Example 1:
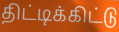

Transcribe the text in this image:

திட்டிக்கிட்டு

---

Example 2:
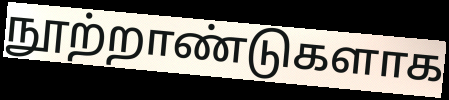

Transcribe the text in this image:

நூற்றாண்டுகளாக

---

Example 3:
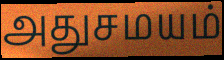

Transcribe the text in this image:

அதுசமயம்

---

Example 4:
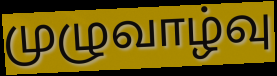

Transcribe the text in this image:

முழுவாழ்வு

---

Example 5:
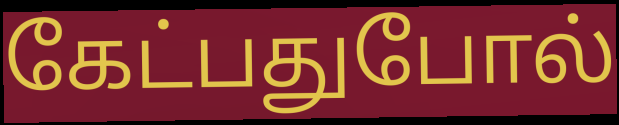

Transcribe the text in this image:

கேட்பதுபோல்